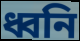
ধ্বনি